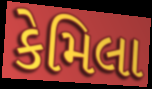
કેમિલા